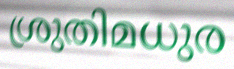
ശ്രുതിമധുര